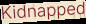
Kidnapped